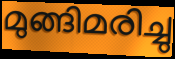
മുങ്ങിമരിച്ചു